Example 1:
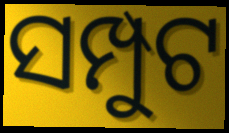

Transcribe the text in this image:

ସମ୍ପୁଟ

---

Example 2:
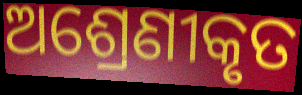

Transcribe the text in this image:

ଅଶ୍ରେଣୀକୃତ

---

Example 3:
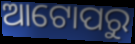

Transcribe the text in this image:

ଆଟୋପରୁ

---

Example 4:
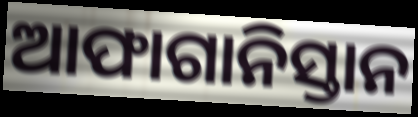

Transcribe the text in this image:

ଆଫାଗାନିସ୍ତାନ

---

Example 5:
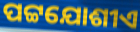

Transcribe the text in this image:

ପଟ୍ଟଯୋଶୀଏ